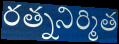
రత్ననిర్మిత